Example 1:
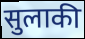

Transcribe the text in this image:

सुलाकी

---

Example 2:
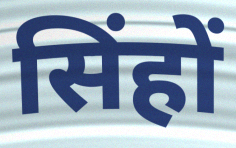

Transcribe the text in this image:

सिंहों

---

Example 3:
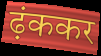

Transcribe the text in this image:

ढ़ंककर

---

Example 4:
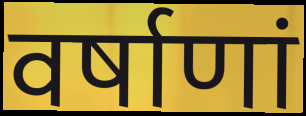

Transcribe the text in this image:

वर्षाणां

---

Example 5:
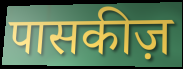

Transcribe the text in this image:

पासकीज़